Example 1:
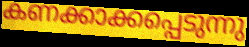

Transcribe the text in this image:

കണക്കാക്കപ്പെടുന്നു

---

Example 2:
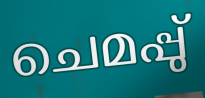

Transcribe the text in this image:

ചെമപ്പു്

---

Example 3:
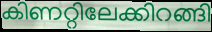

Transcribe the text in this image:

കിണറ്റിലേക്കിറങ്ങി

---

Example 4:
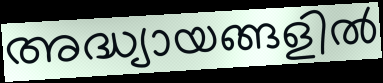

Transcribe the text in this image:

അദ്ധ്യായങ്ങളിൽ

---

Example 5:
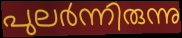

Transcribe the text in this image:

പുലർന്നിരുന്നു